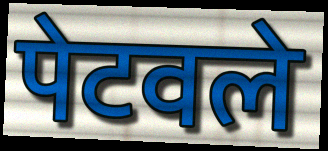
पेटवले